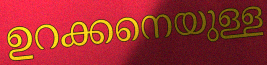
ഉറക്കനെയുള്ള